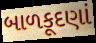
બાળકૂદણાં